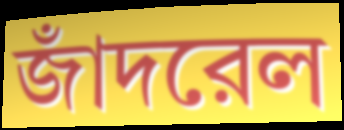
জাঁদরেল